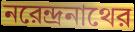
নরেন্দ্রনাথের